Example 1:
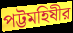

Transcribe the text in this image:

পট্টমহিষীর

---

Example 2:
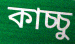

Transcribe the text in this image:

কাচ্চু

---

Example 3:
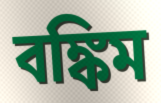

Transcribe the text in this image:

বঙ্কিম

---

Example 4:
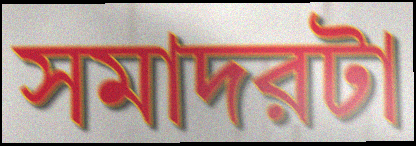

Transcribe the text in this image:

সমাদরটা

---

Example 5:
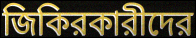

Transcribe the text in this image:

জিকিরকারীদের